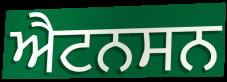
ਐਟਨਸਨ